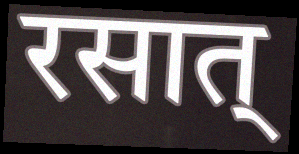
रसात्